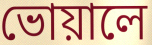
ভোয়ালে